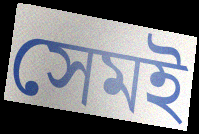
সেমই